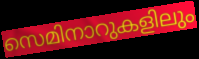
സെമിനാറുകളിലും